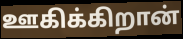
ஊகிக்கிறான்